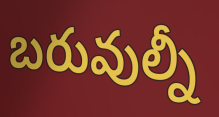
బరువుల్నీ